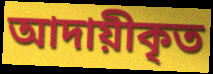
আদায়ীকৃত